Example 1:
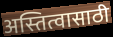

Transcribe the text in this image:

अस्तित्वासाठी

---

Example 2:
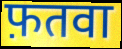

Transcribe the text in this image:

फ़तवा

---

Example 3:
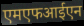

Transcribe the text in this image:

एमएफआईएन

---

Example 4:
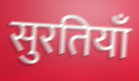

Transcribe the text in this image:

सुरतियाँ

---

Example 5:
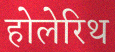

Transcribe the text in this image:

होलेरिथ